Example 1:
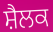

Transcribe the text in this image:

ਸ਼ੈਲਕ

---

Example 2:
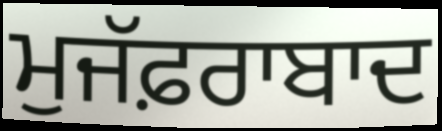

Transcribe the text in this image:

ਮੁਜੱਫ਼ਰਾਬਾਦ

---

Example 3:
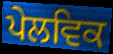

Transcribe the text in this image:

ਪੇਲਵਿਕ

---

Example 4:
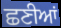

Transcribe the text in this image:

ਛਣੀਆਂ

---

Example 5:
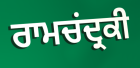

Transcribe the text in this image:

ਰਾਮਚਂਦ੍ਰਕੀ